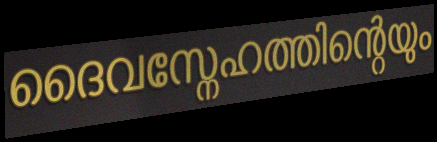
ദൈവസ്നേഹത്തിന്റെയും